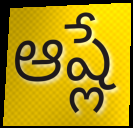
ఆష్లే